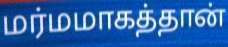
மர்மமாகத்தான்